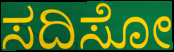
ಸದಿಸೋ